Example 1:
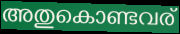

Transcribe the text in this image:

അതുകൊണ്ടവര്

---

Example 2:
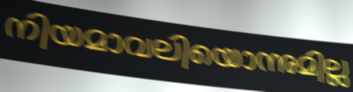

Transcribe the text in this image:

നിയമാവലിയൊന്നുമില്ല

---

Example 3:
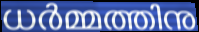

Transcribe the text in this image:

ധർമ്മത്തിനു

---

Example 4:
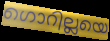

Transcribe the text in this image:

ഗൊറില്ലയെ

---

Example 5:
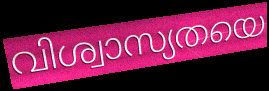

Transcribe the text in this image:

വിശ്വാസ്യതയെ